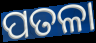
ପତଳା